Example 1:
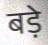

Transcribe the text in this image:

बड़े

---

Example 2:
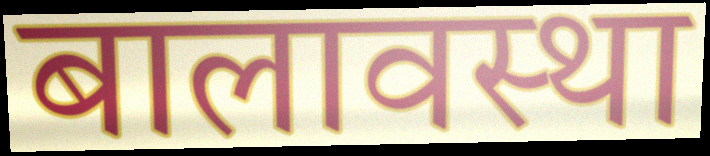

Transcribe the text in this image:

बालावस्था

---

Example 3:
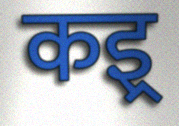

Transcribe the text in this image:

कइ्र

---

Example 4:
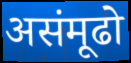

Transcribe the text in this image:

असंमूढो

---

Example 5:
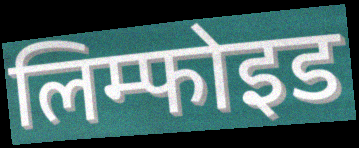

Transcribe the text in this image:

लिम्फोइड